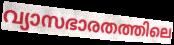
വ്യാസഭാരതത്തിലെ